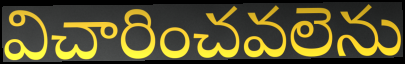
విచారించవలెను